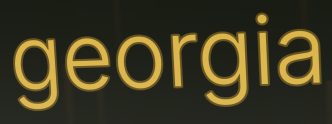
georgia